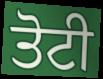
ਤੋਟੀ